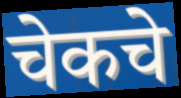
चेकचे